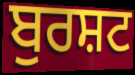
ਬੁਰਸ਼ਟ